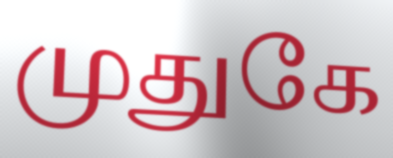
முதுகே